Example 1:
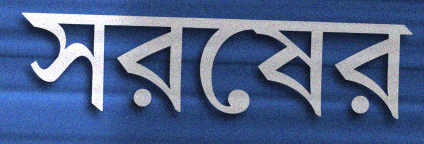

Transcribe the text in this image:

সরষের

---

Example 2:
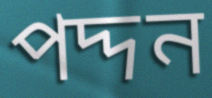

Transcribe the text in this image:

পদ্দন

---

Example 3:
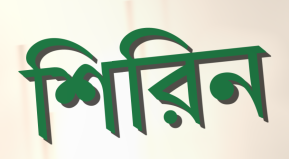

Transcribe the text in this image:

শিরিন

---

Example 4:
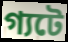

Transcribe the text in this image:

গ্যটে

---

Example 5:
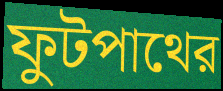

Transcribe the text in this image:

ফুটপাথের